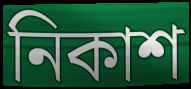
নিকাশ